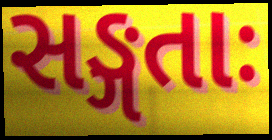
સઙ્ગતાઃ